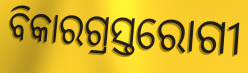
ବିକାରଗ୍ରସ୍ତରୋଗୀ